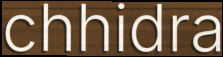
chhidra